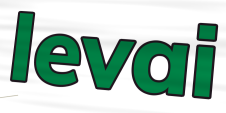
levai